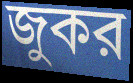
জুকর